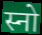
स्नो